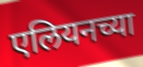
एलियनच्या